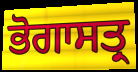
ਭੋਗਾਸਤ੍ਰ